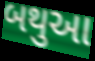
બથુઆ